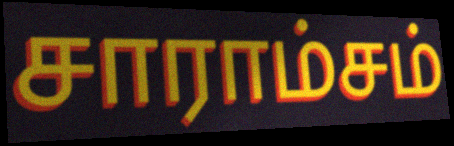
சாராம்சம்